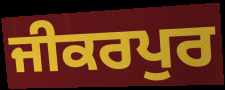
ਜੀਕਰਪੁਰ